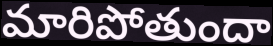
మారిపోతుందా